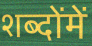
शब्दोंमें